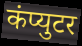
कंप्युटर